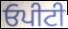
ਓਪੀਟੀ